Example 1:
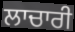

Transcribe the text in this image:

ਲਾਚਾਰੀ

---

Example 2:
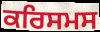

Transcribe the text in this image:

ਕਰਿਸਮਸ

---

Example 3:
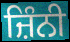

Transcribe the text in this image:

ਜ਼ਿੰਨੀ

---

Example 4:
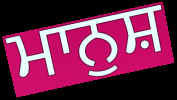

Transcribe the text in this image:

ਮਾਨੁਸ਼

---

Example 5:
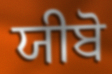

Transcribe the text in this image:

ਯੀਬੋ